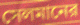
সেলমানের